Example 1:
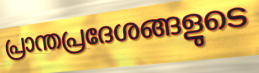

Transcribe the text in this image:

പ്രാന്തപ്രദേശങ്ങളുടെ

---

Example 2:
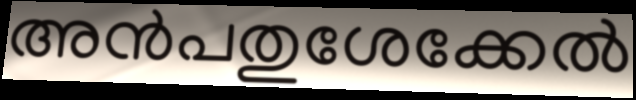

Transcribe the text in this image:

അൻപതുശേക്കേൽ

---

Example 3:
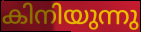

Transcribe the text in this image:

കിനിയുന്നു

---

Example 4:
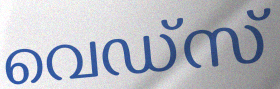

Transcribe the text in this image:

വെഡ്സ്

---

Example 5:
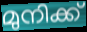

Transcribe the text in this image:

മുനിക്ക്